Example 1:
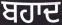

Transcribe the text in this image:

ਬਹਾਦ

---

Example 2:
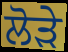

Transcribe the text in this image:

ਲੋੜੇ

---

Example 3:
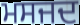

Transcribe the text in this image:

ਮਸਜਦ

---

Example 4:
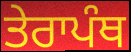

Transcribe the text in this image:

ਤੇਰਾਪੰਥ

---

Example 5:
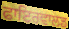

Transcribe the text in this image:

ਫਾਇਰਵਾਲਡ